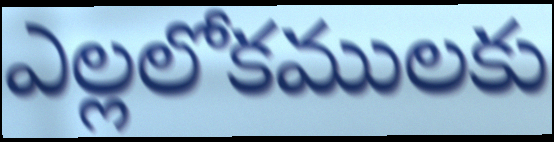
ఎల్లలోకములకు